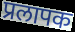
प्रलापक